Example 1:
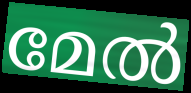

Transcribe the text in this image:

മേൽ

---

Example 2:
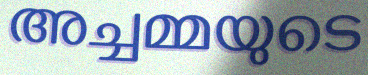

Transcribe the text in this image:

അച്ചമ്മയുടെ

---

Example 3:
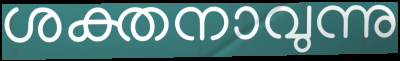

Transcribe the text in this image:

ശക്തനാവുന്നു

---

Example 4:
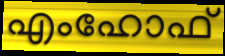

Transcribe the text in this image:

എംഹോഫ്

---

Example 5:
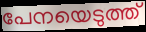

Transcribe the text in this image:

പേനയെടുത്ത്